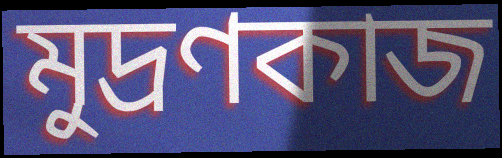
মুদ্রণকাজ